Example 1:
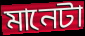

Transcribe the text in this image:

মানেটা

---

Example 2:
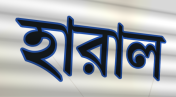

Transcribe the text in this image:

হারাল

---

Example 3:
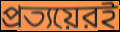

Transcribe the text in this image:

প্রত্যয়েরই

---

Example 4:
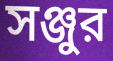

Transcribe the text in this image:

সঞ্জুর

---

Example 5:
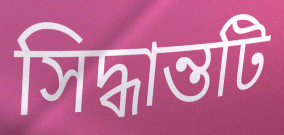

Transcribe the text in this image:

সিদ্ধান্তটি